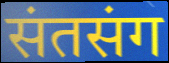
संतसंग